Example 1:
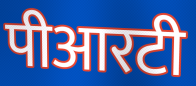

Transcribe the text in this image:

पीआरटी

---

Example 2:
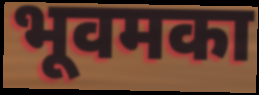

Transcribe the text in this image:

भूवमका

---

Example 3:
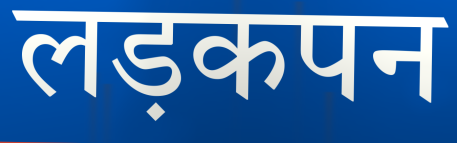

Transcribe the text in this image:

लड़कपन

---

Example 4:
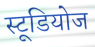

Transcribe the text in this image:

स्टूडियोज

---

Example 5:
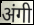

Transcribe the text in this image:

अंगी